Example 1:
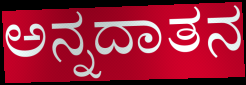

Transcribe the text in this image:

ಅನ್ನದಾತನ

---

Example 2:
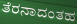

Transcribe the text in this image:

ತೆರನಾದಂತಹ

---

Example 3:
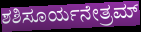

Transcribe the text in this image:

ಶಶಿಸೂರ್ಯನೇತ್ರಮ್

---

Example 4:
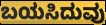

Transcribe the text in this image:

ಬಯಸಿದುವು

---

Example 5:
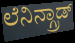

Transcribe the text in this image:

ಲೆನಿನ್ಗ್ರಾಡ್